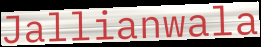
Jallianwala